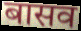
बासव